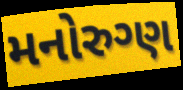
મનોરુગ્ણ